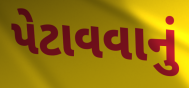
પેટાવવાનું